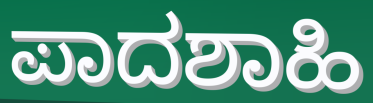
ಪಾದಶಾಹಿ